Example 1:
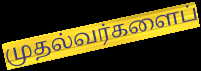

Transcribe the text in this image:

முதல்வர்களைப்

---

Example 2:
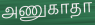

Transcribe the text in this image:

அணுகாதா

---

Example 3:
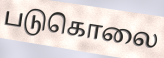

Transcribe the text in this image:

படுகொலை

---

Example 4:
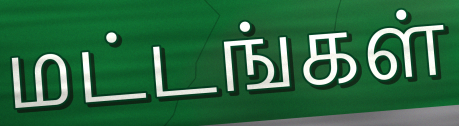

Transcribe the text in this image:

மட்டங்கள்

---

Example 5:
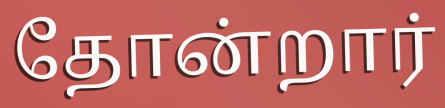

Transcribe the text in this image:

தோன்றார்